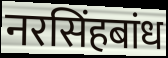
नरसिंहबांध